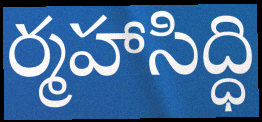
ర్మహాసిద్ధి